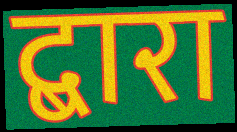
द्बारा